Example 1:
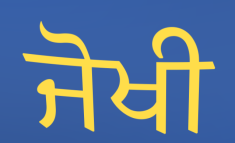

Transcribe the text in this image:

ਜੋਖੀ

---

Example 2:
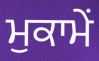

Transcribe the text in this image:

ਮੁਕਾਮੇਂ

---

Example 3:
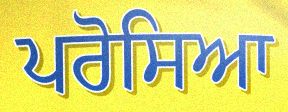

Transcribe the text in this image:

ਪਰੋਸਿਆ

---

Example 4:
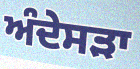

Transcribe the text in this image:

ਅੰਦੇਸੜਾ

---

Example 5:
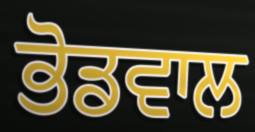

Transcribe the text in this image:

ਭੋਡਵਾਲ